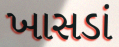
ખાસડાં